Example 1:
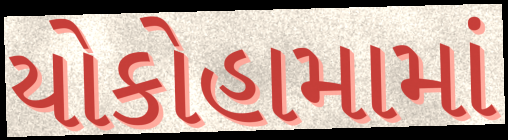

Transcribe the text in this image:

યોકોહામામાં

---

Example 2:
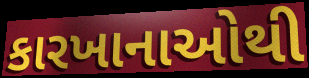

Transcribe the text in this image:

કારખાનાઓથી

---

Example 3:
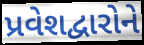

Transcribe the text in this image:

પ્રવેશદ્વારોને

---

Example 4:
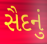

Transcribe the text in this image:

સૈદનું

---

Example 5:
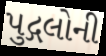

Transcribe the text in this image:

પુદ્ગલોની